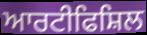
ਆਰਟੀਫਿਸ਼ਿਲ